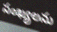
సంఖ్యలను